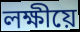
লক্ষীয়ে